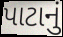
પાટાનું